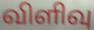
விளிவு